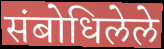
संबोधिलेले